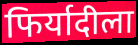
फिर्यादीला